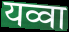
यव्वा